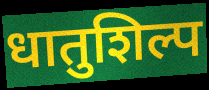
धातुशिल्प